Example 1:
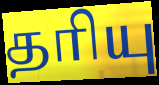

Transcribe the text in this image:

தரியு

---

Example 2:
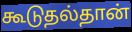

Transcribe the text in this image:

கூடுதல்தான்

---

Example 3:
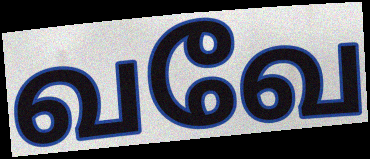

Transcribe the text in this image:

வவே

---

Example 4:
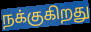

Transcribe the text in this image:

நக்குகிறது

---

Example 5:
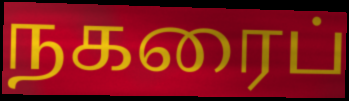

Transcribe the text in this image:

நகரைப்